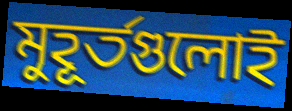
মুহূর্তগুলোই